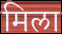
मिला